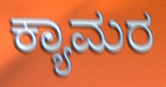
ಕ್ಯಾಮರ